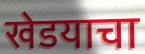
खेडयाचा